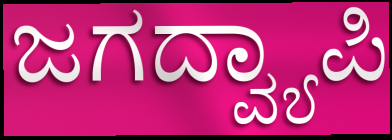
ಜಗದ್ವ್ಯಾಪಿ